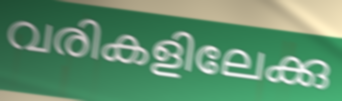
വരികളിലേക്കു